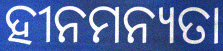
ହୀନମନ୍ୟତା